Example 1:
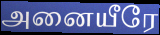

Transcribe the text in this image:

அனையீரே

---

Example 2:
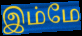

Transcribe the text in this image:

இம்மே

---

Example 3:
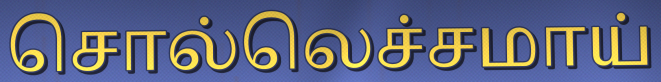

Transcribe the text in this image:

சொல்லெச்சமாய்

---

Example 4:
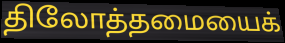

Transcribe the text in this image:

திலோத்தமையைக்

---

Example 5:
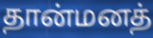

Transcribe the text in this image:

தான்மனத்